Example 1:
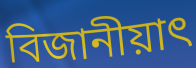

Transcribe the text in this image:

বিজানীয়াৎ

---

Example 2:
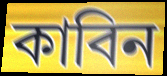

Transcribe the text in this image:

কাবিন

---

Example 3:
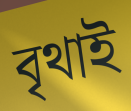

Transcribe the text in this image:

বৃথাই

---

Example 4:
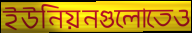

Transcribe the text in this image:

ইউনিয়নগুলোতেও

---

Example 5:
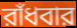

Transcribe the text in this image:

রাঁধবার